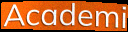
Academi